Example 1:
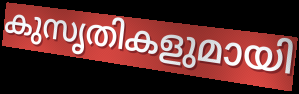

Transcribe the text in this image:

കുസൃതികളുമായി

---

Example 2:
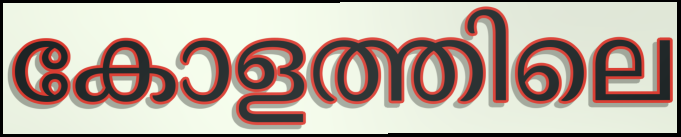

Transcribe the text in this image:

കോളത്തിലെ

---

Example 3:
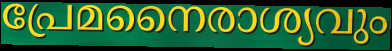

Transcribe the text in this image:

പ്രേമനൈരാശ്യവും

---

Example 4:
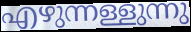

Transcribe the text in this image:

എഴുന്നള്ളുന്നു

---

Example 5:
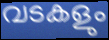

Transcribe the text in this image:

വടകളും